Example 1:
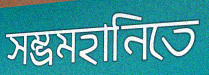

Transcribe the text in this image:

সম্ভ্রমহানিতে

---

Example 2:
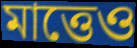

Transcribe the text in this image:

মাত্তেও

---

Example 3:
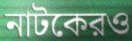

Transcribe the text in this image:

নাটকেরও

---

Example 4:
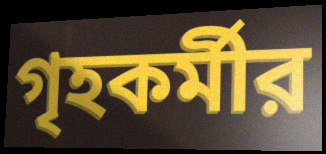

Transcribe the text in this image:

গৃহকর্মীর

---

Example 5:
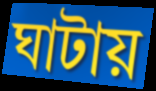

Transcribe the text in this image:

ঘাটায়